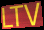
LTV